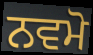
ਨਵਮੋ